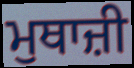
ਮੁਥਾਜ਼ੀ